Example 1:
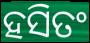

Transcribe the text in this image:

ହସିତଂ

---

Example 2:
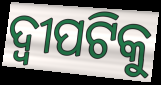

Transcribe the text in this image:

ଦ୍ୱୀପଟିକୁ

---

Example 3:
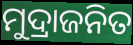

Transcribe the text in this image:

ମୁଦ୍ରାଜନିତ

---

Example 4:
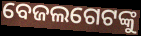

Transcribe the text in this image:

ବେଜଲଗେଟଙ୍କୁ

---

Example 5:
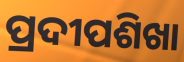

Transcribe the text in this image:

ପ୍ରଦୀପଶିଖା